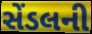
સેંડલની